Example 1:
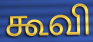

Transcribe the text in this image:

கூவி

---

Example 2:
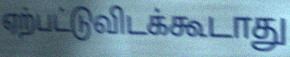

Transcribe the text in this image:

ஏற்பட்டுவிடக்கூடாது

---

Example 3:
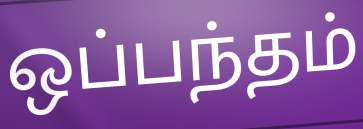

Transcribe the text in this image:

ஒப்பந்தம்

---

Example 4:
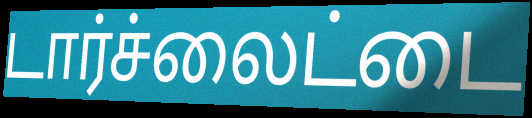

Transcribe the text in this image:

டார்ச்லைட்டை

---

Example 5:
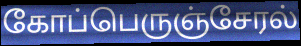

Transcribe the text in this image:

கோப்பெருஞ்சேரல்